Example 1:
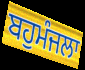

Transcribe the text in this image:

ਬਹੁਮੰਜਲਾ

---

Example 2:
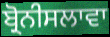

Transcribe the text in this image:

ਬ੍ਰੋਨੀਸਲਾਵਾ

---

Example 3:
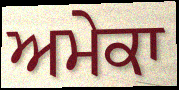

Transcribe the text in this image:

ਅਮੇਕਾ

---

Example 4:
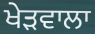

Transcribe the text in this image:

ਖੇੜਵਾਲਾ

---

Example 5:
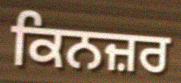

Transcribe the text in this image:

ਕਿਨਜ਼ਰ